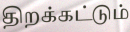
திறக்கட்டும்